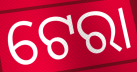
ଟେରା